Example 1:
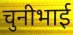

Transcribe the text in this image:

चुनीभाई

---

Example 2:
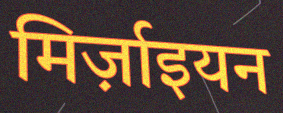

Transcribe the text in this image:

मिर्ज़ाइयन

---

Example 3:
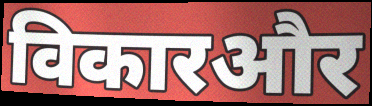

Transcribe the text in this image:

विकारऔर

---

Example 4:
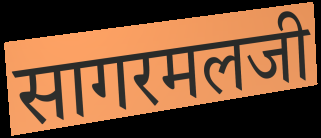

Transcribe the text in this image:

सागरमलजी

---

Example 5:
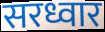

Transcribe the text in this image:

सरध्वार